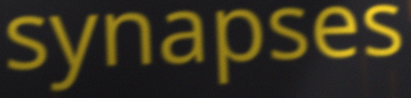
synapses